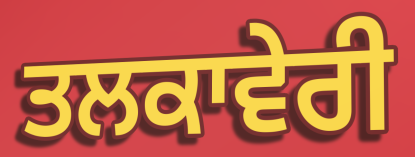
ਤਲਕਾਵੇਰੀ